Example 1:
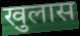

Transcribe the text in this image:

खुलास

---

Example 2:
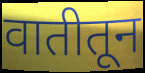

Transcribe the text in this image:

वातीतून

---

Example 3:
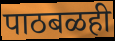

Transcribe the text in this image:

पाठबळही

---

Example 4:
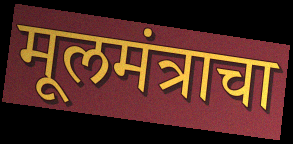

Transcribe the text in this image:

मूलमंत्राचा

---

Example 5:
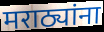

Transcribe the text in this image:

मराठ्यांना